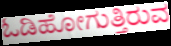
ಓಡಿಹೋಗುತ್ತಿರುವ